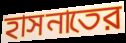
হাসনাতের